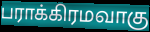
பராக்கிரமவாகு